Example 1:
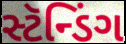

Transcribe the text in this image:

સ્ટૅન્ડિંગ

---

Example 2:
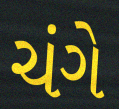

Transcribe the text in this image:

ચંગે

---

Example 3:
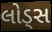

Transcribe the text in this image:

લોડ્સ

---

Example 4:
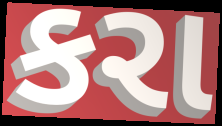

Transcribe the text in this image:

કરા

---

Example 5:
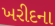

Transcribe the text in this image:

ખરીદના